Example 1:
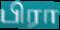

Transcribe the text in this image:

பிரா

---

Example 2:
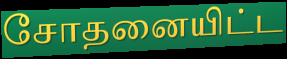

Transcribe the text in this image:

சோதனையிட்ட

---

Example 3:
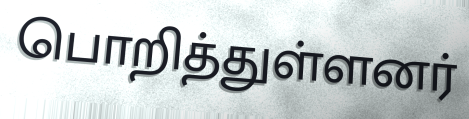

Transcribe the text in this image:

பொறித்துள்ளனர்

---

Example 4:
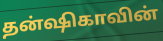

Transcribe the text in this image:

தன்ஷிகாவின்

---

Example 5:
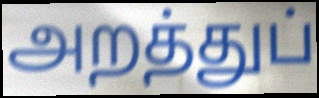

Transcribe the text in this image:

அறத்துப்